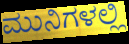
ಮುನಿಗಳಲ್ಲಿ